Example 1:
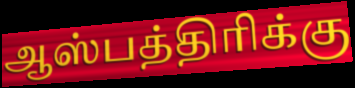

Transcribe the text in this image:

ஆஸ்பத்திரிக்கு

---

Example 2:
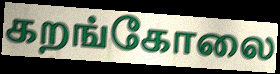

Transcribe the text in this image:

கறங்கோலை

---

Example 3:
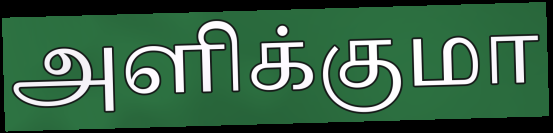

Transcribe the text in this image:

அளிக்குமா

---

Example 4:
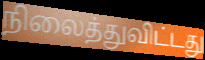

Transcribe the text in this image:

நிலைத்துவிட்டது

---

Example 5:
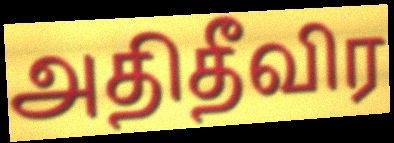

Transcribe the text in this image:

அதிதீவிர